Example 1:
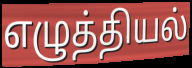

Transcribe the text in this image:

எழுத்தியல்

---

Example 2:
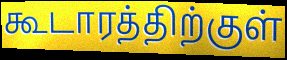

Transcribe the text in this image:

கூடாரத்திற்குள்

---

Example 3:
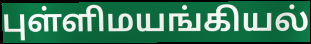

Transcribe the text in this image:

புள்ளிமயங்கியல்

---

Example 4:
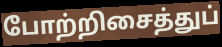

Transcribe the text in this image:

போற்றிசைத்துப்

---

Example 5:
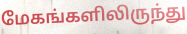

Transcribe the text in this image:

மேகங்களிலிருந்து